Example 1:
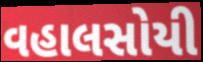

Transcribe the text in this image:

વહાલસોયી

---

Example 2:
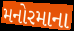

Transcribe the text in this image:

મનોરમાના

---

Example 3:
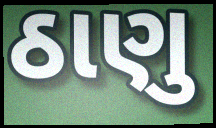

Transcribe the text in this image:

ઠાણુ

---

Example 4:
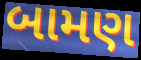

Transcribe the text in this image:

બામણ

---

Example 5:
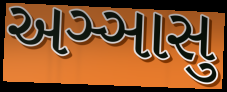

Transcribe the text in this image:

અઞ્ઞાસુ